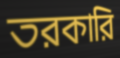
তরকারি